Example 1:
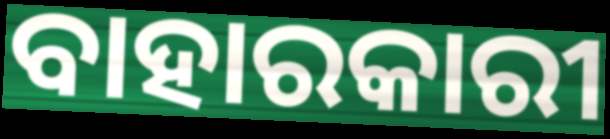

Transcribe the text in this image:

ବାହାରକାରୀ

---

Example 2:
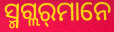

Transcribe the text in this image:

ସ୍ମଗ୍ଲର୍‌ମାନେ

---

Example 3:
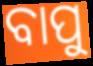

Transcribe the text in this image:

ବାପୁ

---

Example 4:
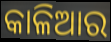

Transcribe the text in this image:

କାଳିଆର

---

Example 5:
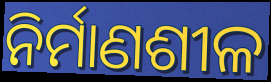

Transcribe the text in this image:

ନିର୍ମାଣଶୀଳ